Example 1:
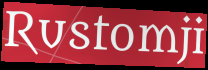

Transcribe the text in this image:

Rustomji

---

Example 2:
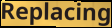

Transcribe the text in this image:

Replacing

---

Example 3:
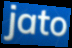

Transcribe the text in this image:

jato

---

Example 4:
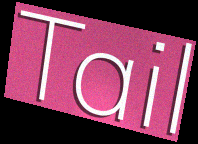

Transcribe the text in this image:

Tail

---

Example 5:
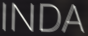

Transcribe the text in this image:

INDA